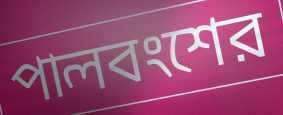
পালবংশের